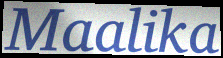
Maalika